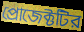
প্রোজেক্টটির